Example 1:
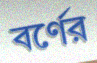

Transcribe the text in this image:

বর্ণের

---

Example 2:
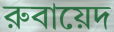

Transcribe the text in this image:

রুবায়েদ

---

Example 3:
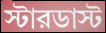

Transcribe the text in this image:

স্টারডাস্ট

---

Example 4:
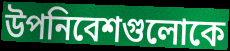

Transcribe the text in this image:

উপনিবেশগুলোকে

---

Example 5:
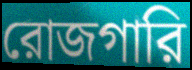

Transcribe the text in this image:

রোজগারি